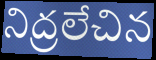
నిద్రలేచిన